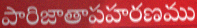
పారిజాతాపహరణము